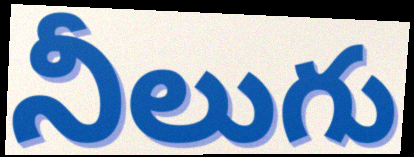
నీలుగు